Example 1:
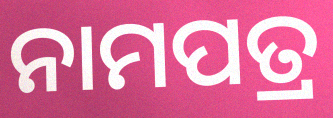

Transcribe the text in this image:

ନାମପତ୍ର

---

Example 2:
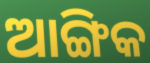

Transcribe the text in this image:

ଆଙ୍ଗିକ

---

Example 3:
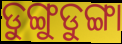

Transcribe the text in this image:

ଡୁଙ୍ଗୁଡୁଙ୍ଗା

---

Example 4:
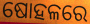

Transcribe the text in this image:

ଷୋହଳରେ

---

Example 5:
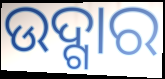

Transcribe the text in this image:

ଉଦ୍ଗାର